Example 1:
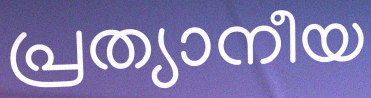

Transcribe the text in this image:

പ്രത്യാനീയ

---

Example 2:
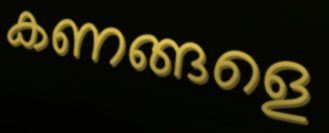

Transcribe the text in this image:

കണങ്ങളെ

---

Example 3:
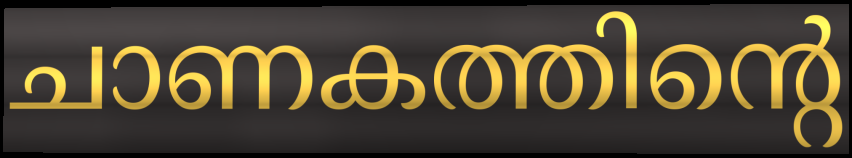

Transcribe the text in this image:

ചാണകത്തിന്റെ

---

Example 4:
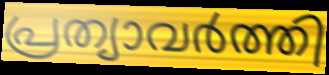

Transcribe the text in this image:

പ്രത്യാവർത്തി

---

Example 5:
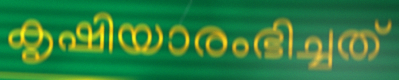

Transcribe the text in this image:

കൃഷിയാരംഭിച്ചത്